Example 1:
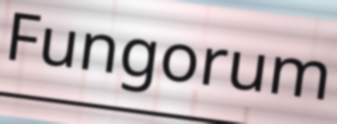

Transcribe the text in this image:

Fungorum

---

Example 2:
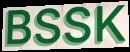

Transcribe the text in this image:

BSSK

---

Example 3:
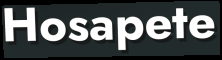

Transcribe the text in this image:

Hosapete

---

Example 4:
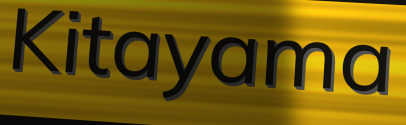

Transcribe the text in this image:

Kitayama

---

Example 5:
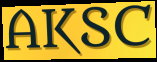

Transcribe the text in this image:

AKSC